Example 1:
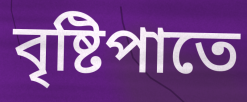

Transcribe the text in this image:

বৃষ্টিপাতে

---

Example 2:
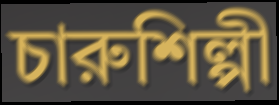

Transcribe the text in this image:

চারুশিল্পী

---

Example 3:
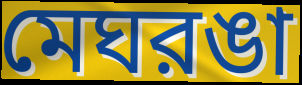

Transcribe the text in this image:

মেঘরঙা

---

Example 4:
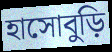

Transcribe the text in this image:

হাসোবুড়ি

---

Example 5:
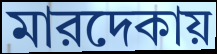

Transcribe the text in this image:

মারদেকায়